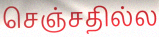
செஞ்சதில்ல